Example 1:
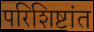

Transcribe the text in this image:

परिशिष्टांत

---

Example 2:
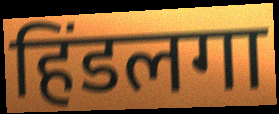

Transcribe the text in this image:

हिंडलगा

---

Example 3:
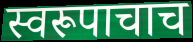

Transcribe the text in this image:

स्वरूपाचाच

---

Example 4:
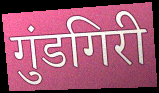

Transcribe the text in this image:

गुंडगिरी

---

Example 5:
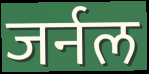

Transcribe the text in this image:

जर्नल